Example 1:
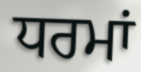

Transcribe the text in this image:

ਧਰਮਾਂ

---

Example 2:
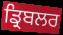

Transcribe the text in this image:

ਡ੍ਰਿਬਲਰ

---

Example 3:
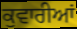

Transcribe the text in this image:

ਕੁਵਾਰੀਆਂ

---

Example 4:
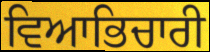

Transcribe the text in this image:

ਵਿਆਭਿਚਾਰੀ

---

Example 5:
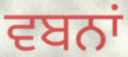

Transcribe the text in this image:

ਵਬਨਾਂ